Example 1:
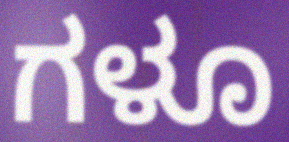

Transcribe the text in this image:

ಗಳೂ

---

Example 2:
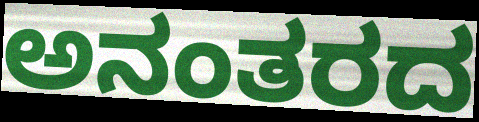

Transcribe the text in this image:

ಅನಂತರದ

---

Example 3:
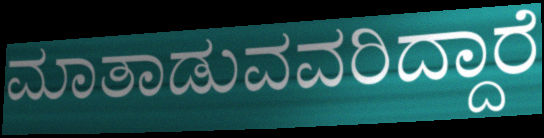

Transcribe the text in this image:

ಮಾತಾಡುವವರಿದ್ದಾರೆ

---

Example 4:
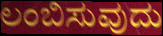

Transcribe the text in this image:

ಲಂಬಿಸುವುದು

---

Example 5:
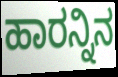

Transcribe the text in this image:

ಹಾರನ್ನಿನ